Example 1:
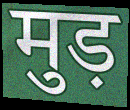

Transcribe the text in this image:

मुड़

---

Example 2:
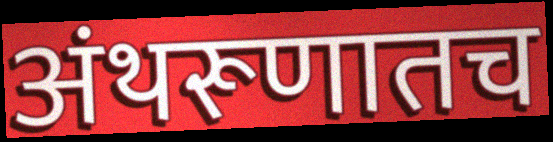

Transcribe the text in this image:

अंथरूणातच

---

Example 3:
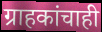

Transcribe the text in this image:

ग्राहकांचाही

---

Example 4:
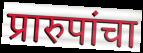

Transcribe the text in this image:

प्रारुपांचा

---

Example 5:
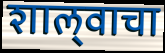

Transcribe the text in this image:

शाल्वाचा